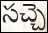
సచ్చె